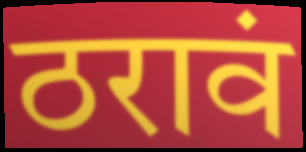
ठरावं